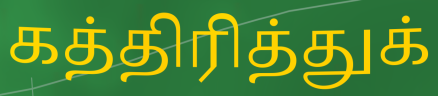
கத்திரித்துக்